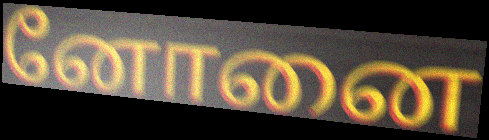
னோனை